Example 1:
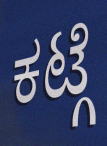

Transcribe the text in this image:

ಕಟ್ಗೆ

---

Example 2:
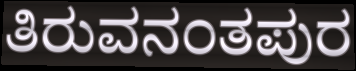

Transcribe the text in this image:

ತಿರುವನಂತಪುರ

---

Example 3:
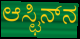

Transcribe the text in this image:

ಆಸ್ಟಿನ್‌ನ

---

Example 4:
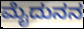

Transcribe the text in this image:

ಮೈದುನನ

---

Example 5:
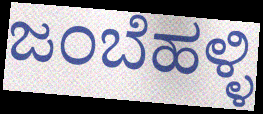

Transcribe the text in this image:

ಜಂಬೆಹಳ್ಳಿ